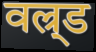
वल्र्ड